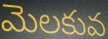
మెలకువ